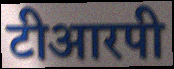
टीआरपी